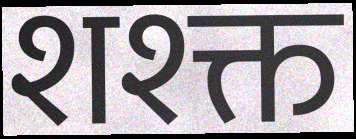
शश्क्त